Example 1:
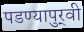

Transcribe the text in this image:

पडण्यापुर्वी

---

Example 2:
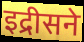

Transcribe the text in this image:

इद्रीसने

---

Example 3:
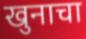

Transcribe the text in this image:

खुनाचा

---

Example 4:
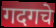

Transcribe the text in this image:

गदगचे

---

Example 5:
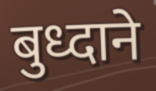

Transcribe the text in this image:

बुध्दाने